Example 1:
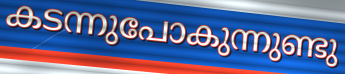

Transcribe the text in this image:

കടന്നുപോകുന്നുണ്ടു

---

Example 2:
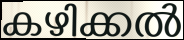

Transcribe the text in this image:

കഴിക്കൽ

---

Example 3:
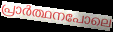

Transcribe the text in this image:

പ്രാർത്ഥനപോലെ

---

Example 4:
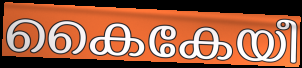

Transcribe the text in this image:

കൈകേയീ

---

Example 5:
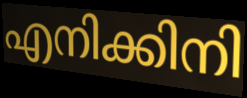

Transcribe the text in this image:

എനിക്കിനി